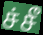
ச்சீ